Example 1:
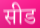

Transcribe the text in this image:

सीड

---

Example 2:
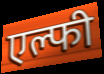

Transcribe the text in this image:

एल्फी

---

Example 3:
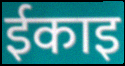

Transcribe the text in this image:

ईकाइ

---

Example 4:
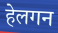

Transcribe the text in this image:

हेलगन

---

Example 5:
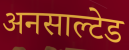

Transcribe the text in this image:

अनसाल्टेड